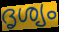
ദൃശ്യം